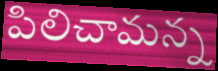
పిలిచామన్న